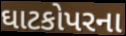
ઘાટકોપરના